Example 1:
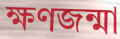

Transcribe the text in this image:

ক্ষণজন্মা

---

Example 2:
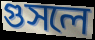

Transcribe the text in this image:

গুসলে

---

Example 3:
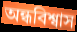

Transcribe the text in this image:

অন্ধবিশ্বাস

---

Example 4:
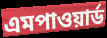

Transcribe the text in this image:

এমপাওয়ার্ড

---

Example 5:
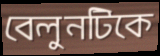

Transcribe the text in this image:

বেলুনটিকে